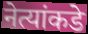
नेत्यांकडे